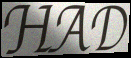
HAD